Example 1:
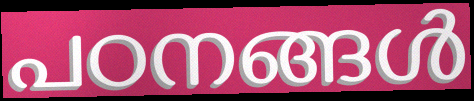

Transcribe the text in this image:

പഠനങ്ങൾ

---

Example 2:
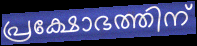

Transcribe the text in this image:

പ്രക്ഷോഭത്തിന്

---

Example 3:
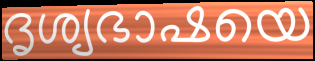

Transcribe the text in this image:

ദൃശ്യഭാഷയെ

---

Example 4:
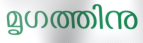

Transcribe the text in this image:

മൃഗത്തിനു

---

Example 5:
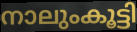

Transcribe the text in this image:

നാലുംകൂട്ടി